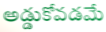
అడ్డుకోవడమే